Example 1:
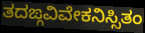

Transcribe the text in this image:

ತದಙ್ಗವಿವೇಕನಿಸ್ಸಿತಂ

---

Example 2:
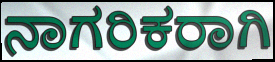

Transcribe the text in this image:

ನಾಗರಿಕರಾಗಿ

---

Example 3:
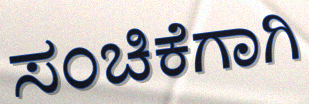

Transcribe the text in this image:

ಸಂಚಿಕೆಗಾಗಿ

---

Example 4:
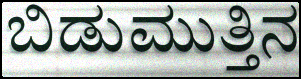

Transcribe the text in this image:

ಬಿಡುಮುತ್ತಿನ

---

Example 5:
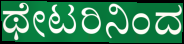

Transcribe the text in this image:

ಥೇಟರಿನಿಂದ